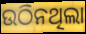
ଉଠିନଥିଲା